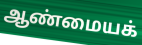
ஆண்மையக்